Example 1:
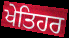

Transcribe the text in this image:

ਖੇਤਿਹਰ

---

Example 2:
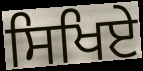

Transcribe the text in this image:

ਸਿਖਿਏ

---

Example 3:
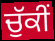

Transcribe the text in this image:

ਚੁੱਕੀਂ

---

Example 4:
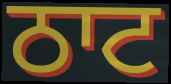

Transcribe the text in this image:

ਠਾਟ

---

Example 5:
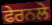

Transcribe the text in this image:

ਫੇਰਨਲੇ